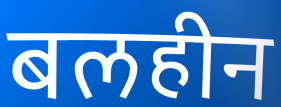
बलहीन